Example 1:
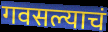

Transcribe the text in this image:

गवसल्याचं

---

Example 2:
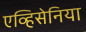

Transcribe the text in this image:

एव्हिसेनिया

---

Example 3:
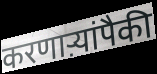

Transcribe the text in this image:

करणाऱ्‍यांपैकी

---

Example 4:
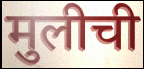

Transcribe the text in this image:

मुलीची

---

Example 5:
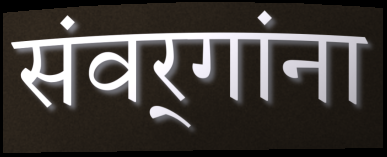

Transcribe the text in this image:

संवर्गांना